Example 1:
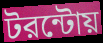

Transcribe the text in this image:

টরন্টোয়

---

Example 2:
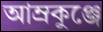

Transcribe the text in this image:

আম্রকুঞ্জে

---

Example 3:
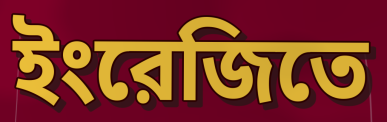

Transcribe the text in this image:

ইংরেজিতে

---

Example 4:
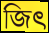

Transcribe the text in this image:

জিৎ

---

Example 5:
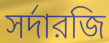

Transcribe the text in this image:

সর্দারজি